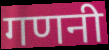
गणनी